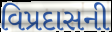
વિપ્રદાસની